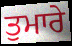
ਤੁਮਾਰੇ